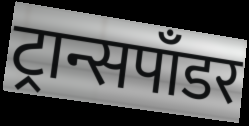
ट्रान्सपाँडर